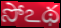
సోఽథ